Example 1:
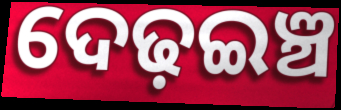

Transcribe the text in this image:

ଦେଢ଼ଇଞ୍ଚ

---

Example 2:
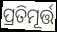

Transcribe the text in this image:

ପ୍ରତିମୂର୍ତ୍ତ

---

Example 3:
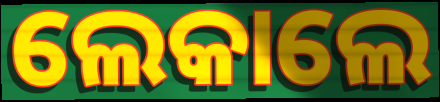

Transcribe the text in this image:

ଲେକାଲେ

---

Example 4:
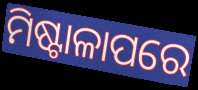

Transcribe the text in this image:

ମିଷ୍ଟାଳାପରେ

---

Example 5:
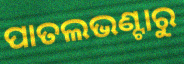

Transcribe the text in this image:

ପାତଲଭଣ୍ଟାରୁ